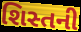
શિસ્તની